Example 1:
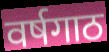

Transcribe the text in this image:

वर्षगाठ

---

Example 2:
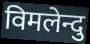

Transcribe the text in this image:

विमलेन्दु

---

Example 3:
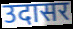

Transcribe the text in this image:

उदासर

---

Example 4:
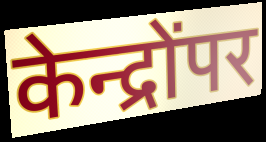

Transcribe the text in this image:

केन्द्रोंपर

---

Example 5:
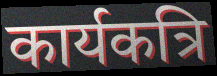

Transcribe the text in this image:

कार्यकत्रि